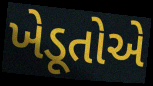
ખેડૂતોએ